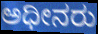
ಅಧೀನರು